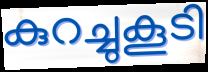
കുറച്ചുകൂടി